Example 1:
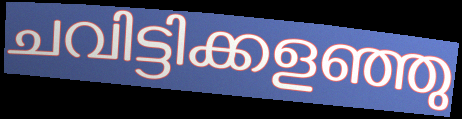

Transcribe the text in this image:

ചവിട്ടിക്കളഞ്ഞു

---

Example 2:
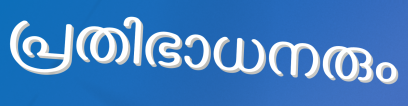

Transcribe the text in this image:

പ്രതിഭാധനരും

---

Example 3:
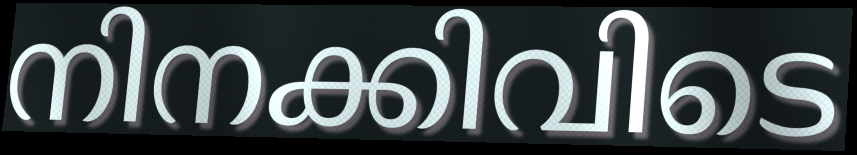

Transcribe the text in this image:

നിനക്കിവിടെ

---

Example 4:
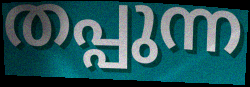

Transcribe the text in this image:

തപ്പുന്ന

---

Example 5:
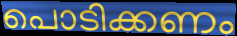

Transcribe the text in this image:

പൊടിക്കണം